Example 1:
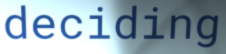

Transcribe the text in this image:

deciding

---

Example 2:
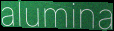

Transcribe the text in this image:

alumina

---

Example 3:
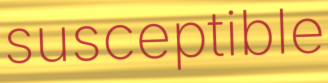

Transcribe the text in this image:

susceptible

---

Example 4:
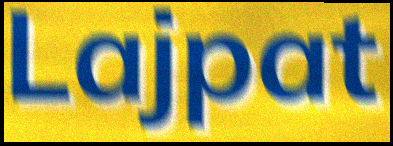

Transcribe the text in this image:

Lajpat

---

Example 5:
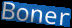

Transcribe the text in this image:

Boner